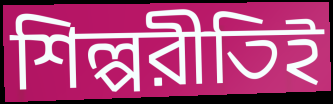
শিল্পরীতিই